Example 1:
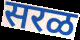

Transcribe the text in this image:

सरळ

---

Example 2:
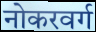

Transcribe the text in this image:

नोकरवर्ग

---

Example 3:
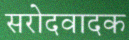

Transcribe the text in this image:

सरोदवादक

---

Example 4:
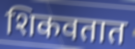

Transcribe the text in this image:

शिकवतात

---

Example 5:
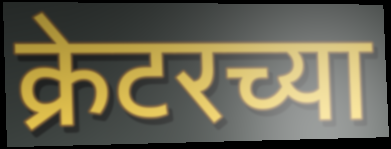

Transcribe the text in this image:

क्रेटरच्या